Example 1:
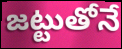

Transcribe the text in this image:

జట్టుతోనే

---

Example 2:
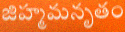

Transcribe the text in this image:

జిహ్మమనృతం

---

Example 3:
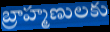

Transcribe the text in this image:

బ్రాహ్మణులకు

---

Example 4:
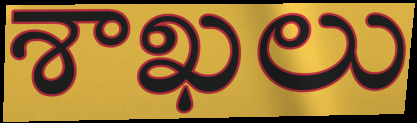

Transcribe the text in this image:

శాఖలు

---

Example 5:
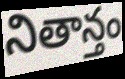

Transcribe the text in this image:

నితాన్తం